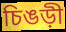
চিঙড়ী